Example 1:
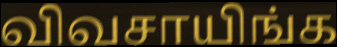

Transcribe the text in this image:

விவசாயிங்க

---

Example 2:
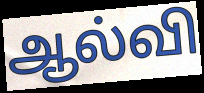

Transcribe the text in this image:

ஆல்வி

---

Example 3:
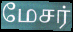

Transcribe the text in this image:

மேசர்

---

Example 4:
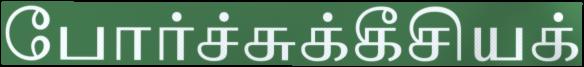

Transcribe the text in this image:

போர்ச்சுக்கீசியக்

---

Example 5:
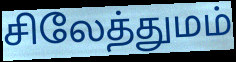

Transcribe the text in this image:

சிலேத்துமம்